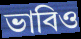
ভাবিও